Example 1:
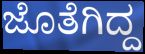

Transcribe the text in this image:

ಜೊತೆಗಿದ್ದ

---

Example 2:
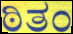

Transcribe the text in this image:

ಠಿತಂ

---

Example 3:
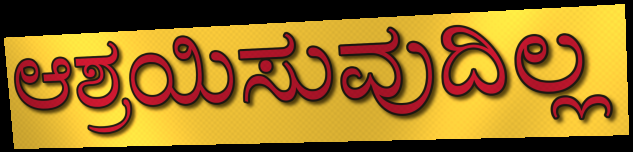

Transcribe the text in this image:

ಆಶ್ರಯಿಸುವುದಿಲ್ಲ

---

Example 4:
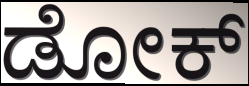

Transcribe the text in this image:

ಡೋಕ್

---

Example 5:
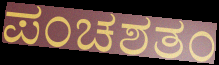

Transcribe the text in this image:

ಪಂಚಶತಂ